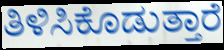
ತಿಳಿಸಿಕೊಡುತ್ತಾರೆ